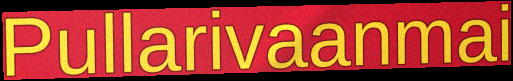
Pullarivaanmai